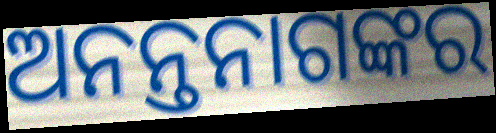
ଅନନ୍ତନାଗଙ୍କର